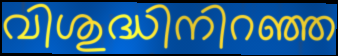
വിശുദ്ധിനിറഞ്ഞ